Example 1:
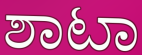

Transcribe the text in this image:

ಶಾಟಾ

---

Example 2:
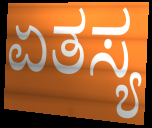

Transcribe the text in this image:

ಏತಸ್ಯ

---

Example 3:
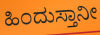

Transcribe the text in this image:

ಹಿಂದುಸ್ತಾನೀ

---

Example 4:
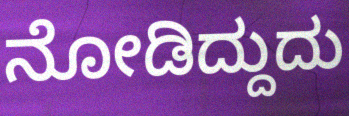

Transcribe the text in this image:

ನೋಡಿದ್ದುದು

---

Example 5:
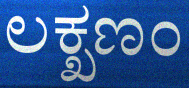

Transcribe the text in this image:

ಲಕ್ಖಣಂ